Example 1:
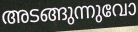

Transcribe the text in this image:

അടങ്ങുന്നുവോ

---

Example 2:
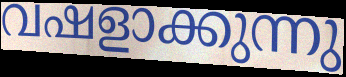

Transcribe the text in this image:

വഷളാക്കുന്നു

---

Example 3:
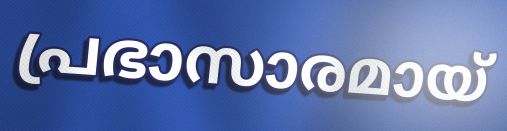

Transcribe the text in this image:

പ്രഭാസാരമായ്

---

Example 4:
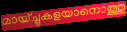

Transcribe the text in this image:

മായ്ച്ചുകളയാനൊത്തു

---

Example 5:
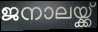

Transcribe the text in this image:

ജനാലയ്ക്ക്